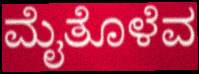
ಮೈತೊಳೆವ